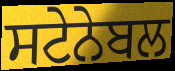
ਸਟੇਨੇਬਲ